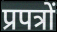
प्रपत्रों